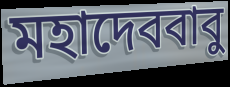
মহাদেববাবু